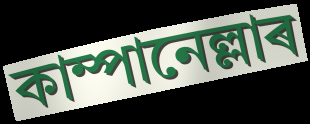
কাম্পানেল্লাৰ